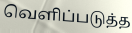
வெளிப்படுத்த